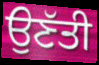
ਉਣੱਤੀ